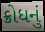
ક્રોધનું